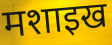
मशाइख